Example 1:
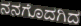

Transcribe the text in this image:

ನನಗೊದಗಿದ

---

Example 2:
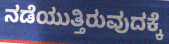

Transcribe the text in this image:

ನಡೆಯುತ್ತಿರುವುದಕ್ಕೆ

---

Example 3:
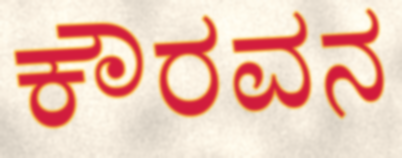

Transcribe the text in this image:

ಕೌರವನ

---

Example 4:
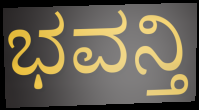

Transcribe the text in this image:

ಭವನ್ತಿ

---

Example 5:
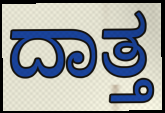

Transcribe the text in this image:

ದಾತ್ತ